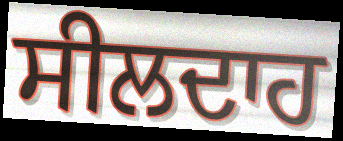
ਸੀਲਦਾਹ